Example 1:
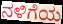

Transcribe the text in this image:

ನಳಿಗೆಯ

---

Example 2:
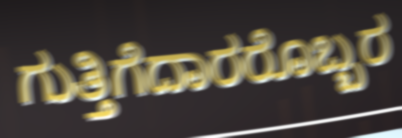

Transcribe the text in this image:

ಗುತ್ತಿಗೆದಾರರೊಬ್ಬರ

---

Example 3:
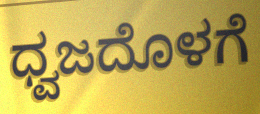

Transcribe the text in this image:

ಧ್ವಜದೊಳಗೆ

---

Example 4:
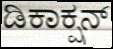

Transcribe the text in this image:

ಡಿಕಾಕ್ಷನ್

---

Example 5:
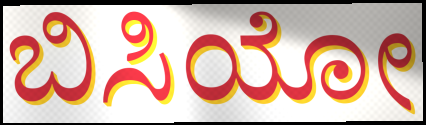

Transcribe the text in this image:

ಬಿಸಿಯೋ